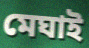
মেঘাই